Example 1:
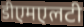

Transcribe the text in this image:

डीएमएलटी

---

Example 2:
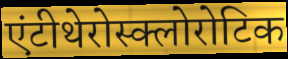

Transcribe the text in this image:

एंटीथेरोस्क्लोरोटिक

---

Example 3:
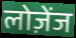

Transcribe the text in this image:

लोज़ेंज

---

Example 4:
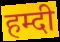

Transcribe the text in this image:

हम्दी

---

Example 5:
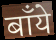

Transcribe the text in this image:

बाँये